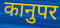
कानुपर